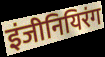
इंजीनियिरंग